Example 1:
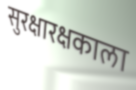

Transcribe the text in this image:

सुरक्षारक्षकाला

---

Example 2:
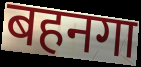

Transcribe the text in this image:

बहनगा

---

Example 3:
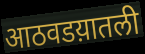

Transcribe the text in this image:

आठवडय़ातली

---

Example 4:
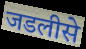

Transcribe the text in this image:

जडलीसे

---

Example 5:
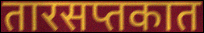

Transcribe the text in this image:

तारसप्तकात